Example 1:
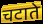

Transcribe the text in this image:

चटाते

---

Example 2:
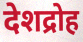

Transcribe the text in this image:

देशद्रोह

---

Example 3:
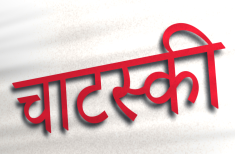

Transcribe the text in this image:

चाटस्की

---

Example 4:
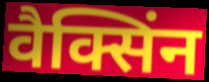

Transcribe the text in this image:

वैक्सिंन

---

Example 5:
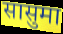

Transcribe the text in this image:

सासुमा